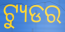
ଟ୍ୟୁଡର